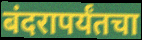
बंदरापर्यंतचा